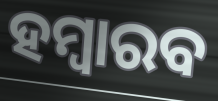
ହମ୍ବାରବ